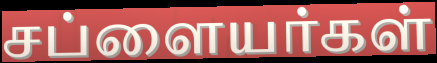
சப்ளையர்கள்